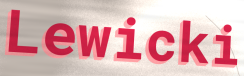
Lewicki